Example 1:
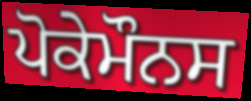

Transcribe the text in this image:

ਪੋਕੇਮੌਨਸ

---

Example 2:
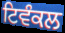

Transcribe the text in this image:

ਟਿਵੰਕਲ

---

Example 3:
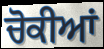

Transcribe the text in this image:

ਚੋਕੀਆਂ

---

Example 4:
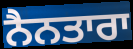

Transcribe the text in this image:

ਨੈਨਤਾਰਾ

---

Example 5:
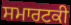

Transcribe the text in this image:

ਸਮਾਰਟਕੀ